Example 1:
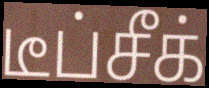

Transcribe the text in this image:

டீப்சீக்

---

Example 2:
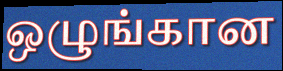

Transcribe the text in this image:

ஒழுங்கான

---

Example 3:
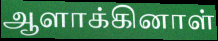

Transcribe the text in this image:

ஆளாக்கினாள்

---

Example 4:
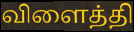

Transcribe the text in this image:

விளைத்தி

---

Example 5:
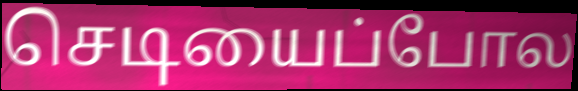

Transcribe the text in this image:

செடியைப்போல